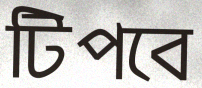
টিপবে